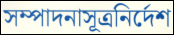
সম্পাদনাসূত্রনির্দেশ